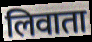
लिवाता